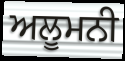
ਅਲੂਮਨੀ